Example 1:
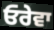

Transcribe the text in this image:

ਓਰੇਵਾ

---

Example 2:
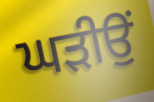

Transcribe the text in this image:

ਘੜੀਉਂ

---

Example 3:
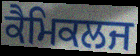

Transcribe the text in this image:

ਕੈਮਿਕਲਜ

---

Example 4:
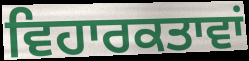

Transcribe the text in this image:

ਵਿਹਾਰਕਤਾਵਾਂ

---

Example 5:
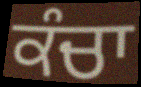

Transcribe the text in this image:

ਕੰਚਾ